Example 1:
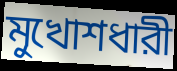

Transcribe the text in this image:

মুখোশধারী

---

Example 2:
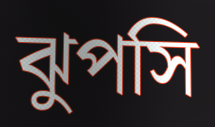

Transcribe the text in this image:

ঝুপসি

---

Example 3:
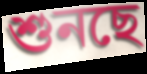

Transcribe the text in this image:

শুনছে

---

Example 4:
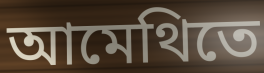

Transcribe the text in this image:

আমেথিতে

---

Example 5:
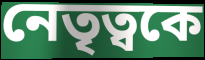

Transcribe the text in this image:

নেতৃত্বকে